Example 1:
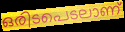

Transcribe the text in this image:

ഒരിടപെടലാണ്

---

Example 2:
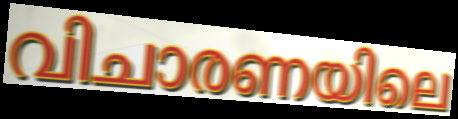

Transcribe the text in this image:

വിചാരണയിലെ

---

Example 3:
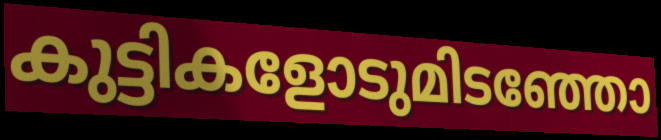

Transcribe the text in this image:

കുട്ടികളോടുമിടഞ്ഞോ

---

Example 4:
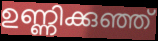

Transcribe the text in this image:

ഉണ്ണിക്കുഞ്ഞ്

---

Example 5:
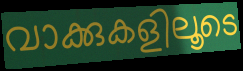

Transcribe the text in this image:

വാക്കുകളിലൂടെ